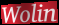
Wolin